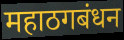
महाठगबंधन